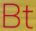
Bt